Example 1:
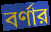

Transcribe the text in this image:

বর্ণার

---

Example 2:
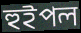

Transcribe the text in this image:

হুইপল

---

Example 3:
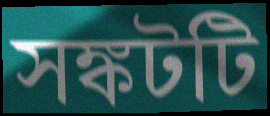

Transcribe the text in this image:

সঙ্কটটি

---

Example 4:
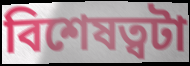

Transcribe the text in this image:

বিশেষত্বটা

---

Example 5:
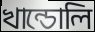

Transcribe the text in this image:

খান্ডোলি